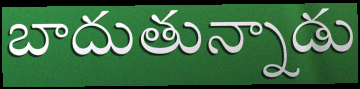
బాదుతున్నాడు